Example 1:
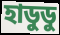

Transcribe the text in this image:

হাডুডু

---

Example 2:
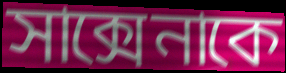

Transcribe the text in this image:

সাক্সেনাকে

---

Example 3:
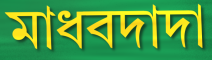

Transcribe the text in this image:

মাধবদাদা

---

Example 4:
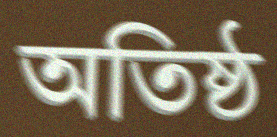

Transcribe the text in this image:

অতিষ্ঠ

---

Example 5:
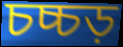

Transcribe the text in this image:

চচ্চড়